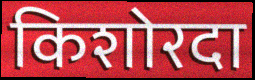
किशोरदा